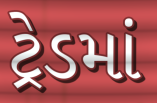
ટ્રેડમાં